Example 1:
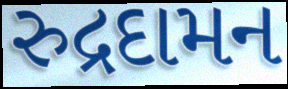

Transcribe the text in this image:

રુદ્રદામન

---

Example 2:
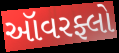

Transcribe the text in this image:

ઑવરફ્લો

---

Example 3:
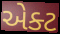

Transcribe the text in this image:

એક્ટ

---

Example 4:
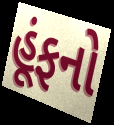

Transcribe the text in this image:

હૂંફનો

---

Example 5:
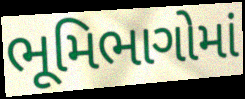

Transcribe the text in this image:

ભૂમિભાગોમાં